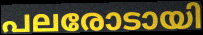
പലരോടായി